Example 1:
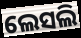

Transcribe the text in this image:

ଲେସଲି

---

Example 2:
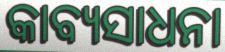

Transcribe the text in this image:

କାବ୍ୟସାଧନା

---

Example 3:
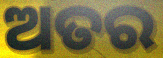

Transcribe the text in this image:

ଅତର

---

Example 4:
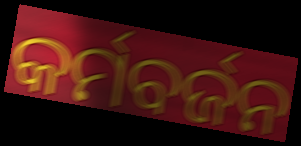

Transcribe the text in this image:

କର୍ମବର୍ଜନ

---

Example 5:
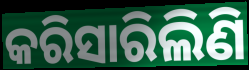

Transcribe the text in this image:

କରିସାରିଲିଣି